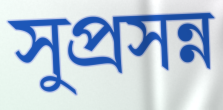
সুপ্রসন্ন